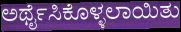
ಅರ್ಥೈಸಿಕೊಳ್ಳಲಾಯಿತು